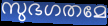
സുഭഗതമേ